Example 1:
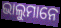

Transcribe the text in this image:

ଭାଲୁମାନେ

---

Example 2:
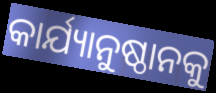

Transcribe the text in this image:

କାର୍ଯ୍ୟାନୁଷ୍ଠାନକୁ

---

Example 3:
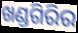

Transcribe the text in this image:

ଖଣ୍ଡଗିରିର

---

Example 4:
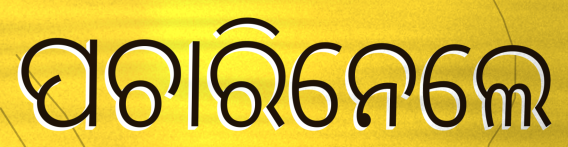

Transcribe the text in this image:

ପଚାରିନେଲେ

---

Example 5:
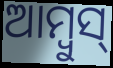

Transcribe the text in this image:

ଆମ୍ବୁସ୍